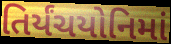
તિર્યંચયોનિમાં